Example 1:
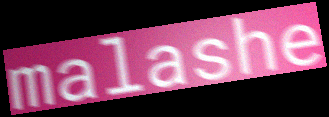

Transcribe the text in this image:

malashe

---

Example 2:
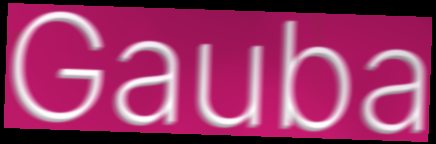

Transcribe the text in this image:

Gauba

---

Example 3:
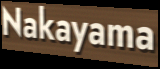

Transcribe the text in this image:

Nakayama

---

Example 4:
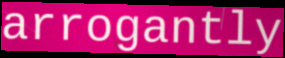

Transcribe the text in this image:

arrogantly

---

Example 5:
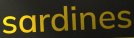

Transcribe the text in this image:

sardines